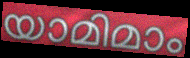
യാമിമാം